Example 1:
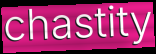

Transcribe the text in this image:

chastity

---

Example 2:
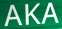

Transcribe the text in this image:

AKA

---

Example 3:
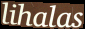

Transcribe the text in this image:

lihalas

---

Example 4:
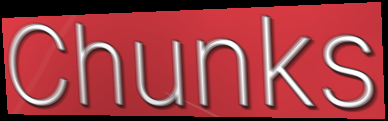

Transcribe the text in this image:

Chunks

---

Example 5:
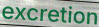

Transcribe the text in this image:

excretion